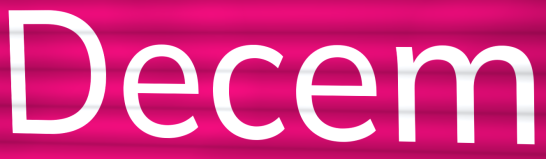
Decem